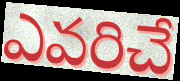
ఎవరిచే